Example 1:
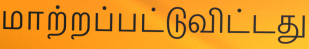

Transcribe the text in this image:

மாற்றப்பட்டுவிட்டது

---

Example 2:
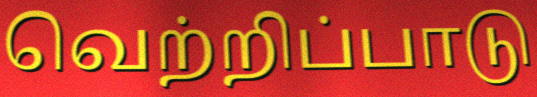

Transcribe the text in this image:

வெற்றிப்பாடு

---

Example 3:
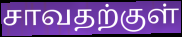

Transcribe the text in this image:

சாவதற்குள்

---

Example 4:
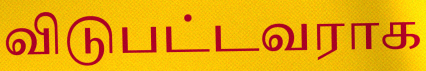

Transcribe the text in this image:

விடுபட்டவராக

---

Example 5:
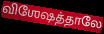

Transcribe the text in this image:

விஶேஷத்தாலே